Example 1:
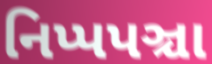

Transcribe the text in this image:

નિપ્પપઞ્ચા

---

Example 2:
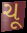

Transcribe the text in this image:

ચૂ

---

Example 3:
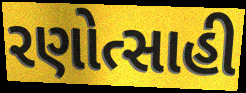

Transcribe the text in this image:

રણોત્સાહી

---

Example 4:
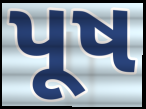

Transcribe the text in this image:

પૂષ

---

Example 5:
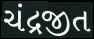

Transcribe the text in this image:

ચંદ્રજીત